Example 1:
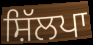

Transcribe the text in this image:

ਸ਼ਿੱਲਪਾ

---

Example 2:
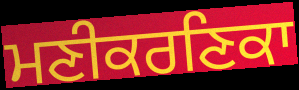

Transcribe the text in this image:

ਮਣੀਕਰਣਿਕਾ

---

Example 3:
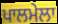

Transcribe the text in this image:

ਪਾਲਮੇਲਾ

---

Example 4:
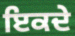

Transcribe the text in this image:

ਇਕਦੇ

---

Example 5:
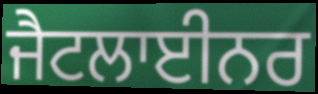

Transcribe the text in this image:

ਜੈਟਲਾਈਨਰ